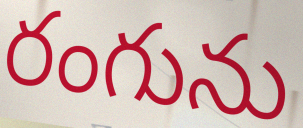
రంగును